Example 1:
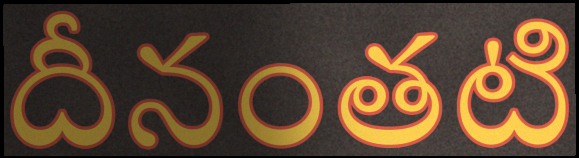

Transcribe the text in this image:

దీనంతటి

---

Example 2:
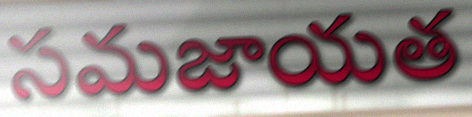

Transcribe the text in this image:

సమజాయత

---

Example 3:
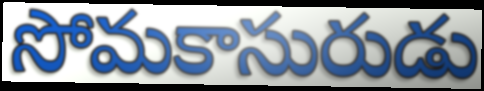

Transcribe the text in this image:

సోమకాసురుడు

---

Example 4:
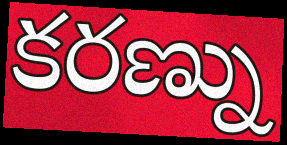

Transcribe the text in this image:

కరణ్ను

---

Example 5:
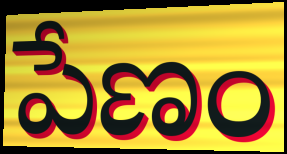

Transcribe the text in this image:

పేణం